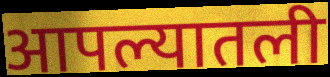
आपल्यातली